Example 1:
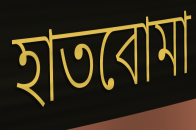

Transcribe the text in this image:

হাতবোমা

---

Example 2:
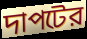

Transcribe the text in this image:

দাপটের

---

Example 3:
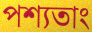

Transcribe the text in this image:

পশ্যতাং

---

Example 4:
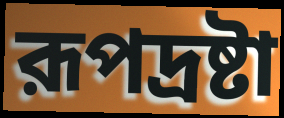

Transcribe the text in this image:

রূপদ্রষ্টা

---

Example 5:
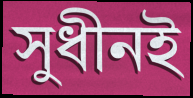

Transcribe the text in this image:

সুধীনই